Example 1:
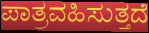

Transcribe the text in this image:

ಪಾತ್ರವಹಿಸುತ್ತದೆ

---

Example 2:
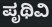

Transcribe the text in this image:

ಪೃಥಿವಿ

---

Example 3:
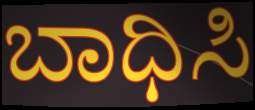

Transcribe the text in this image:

ಬಾಧಿಸಿ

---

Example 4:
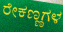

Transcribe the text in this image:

ರೇಕಣ್ಣಗಳ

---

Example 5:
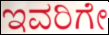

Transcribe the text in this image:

ಇವರಿಗೇ